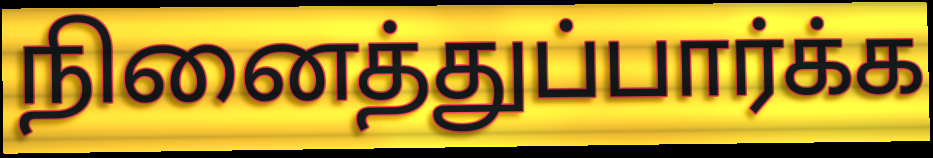
நினைத்துப்பார்க்க